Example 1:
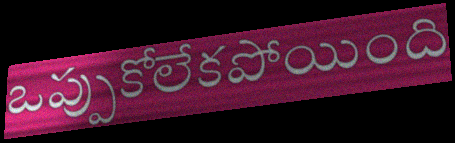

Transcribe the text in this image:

ఒప్పుకోలేకపోయింది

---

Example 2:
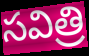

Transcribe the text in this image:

సవిత్రి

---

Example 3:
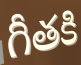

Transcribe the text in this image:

గీతకి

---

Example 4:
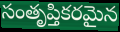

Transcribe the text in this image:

సంతృప్తికరమైన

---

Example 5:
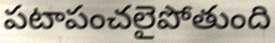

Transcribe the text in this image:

పటాపంచలైపోతుంది